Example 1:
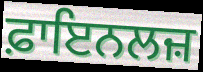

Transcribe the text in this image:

ਫ਼ਾਇਨਲਜ਼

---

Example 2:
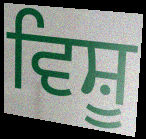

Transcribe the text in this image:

ਵਿਸ਼ੂ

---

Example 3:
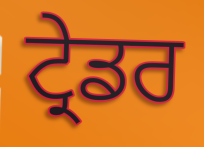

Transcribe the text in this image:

ਟ੍ਰੇਡਰ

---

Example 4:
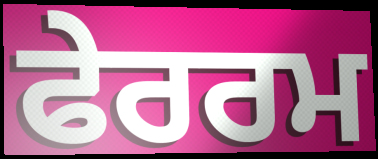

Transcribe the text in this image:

ਫੇਰਰਮ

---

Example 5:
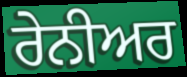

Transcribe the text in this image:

ਰੇਨੀਅਰ